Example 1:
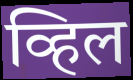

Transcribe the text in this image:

व्हिल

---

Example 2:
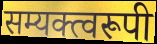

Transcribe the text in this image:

सम्यक्त्वरूपी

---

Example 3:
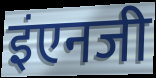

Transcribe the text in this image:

इंएनजी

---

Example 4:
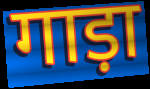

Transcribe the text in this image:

गाड़ा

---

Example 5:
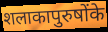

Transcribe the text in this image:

शलाकापुरुषोंके